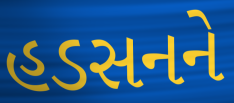
હડસનને